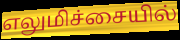
எலுமிச்சையில்